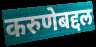
करुणेबद्दल